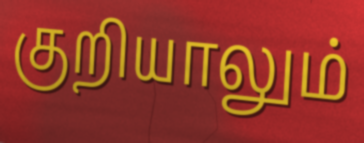
குறியாலும்